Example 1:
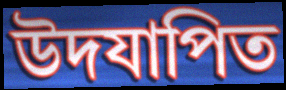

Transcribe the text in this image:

উদযাপিত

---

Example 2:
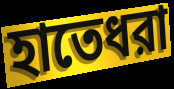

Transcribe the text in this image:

হাতেধরা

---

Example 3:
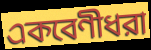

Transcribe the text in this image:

একবেণীধরা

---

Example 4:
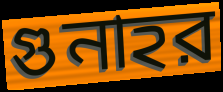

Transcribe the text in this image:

গুনাহর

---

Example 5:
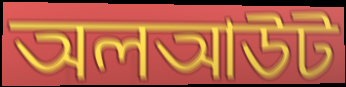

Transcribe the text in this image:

অলআউট